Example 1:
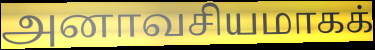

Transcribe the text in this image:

அனாவசியமாகக்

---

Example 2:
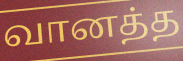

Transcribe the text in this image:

வானத்த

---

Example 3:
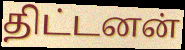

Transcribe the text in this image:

திட்டனன்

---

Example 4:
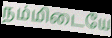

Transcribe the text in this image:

நம்மிடையே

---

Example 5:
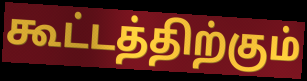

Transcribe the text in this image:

கூட்டத்திற்கும்